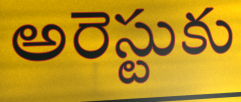
అరెస్టుకు